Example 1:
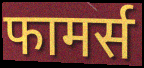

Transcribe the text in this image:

फामर्स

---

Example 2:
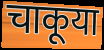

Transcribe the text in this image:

चाकूया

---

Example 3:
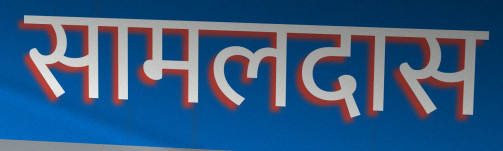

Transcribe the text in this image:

सामलदास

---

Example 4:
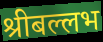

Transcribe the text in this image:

श्रीबल्लभ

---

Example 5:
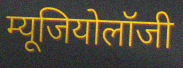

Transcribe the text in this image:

म्यूजियोलॉजी